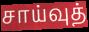
சாய்வுத்